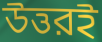
উত্তরই